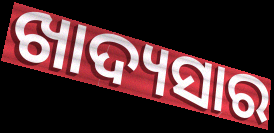
ଖାଦ୍ୟସାର